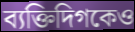
ব্যক্তিদিগকেও